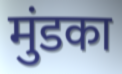
मुंडका